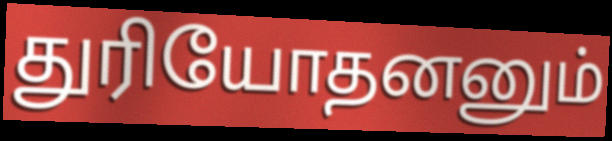
துரியோதனனும்